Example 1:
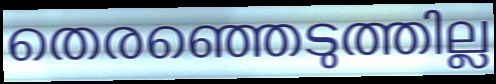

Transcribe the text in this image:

തെരഞ്ഞെടുത്തില്ല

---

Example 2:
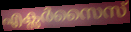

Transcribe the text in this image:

എക്സർസൈസ്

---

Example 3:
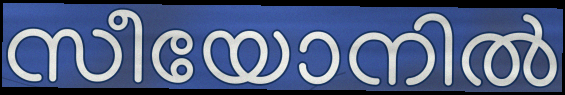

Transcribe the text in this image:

സീയോനിൽ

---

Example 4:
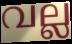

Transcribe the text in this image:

വല്ല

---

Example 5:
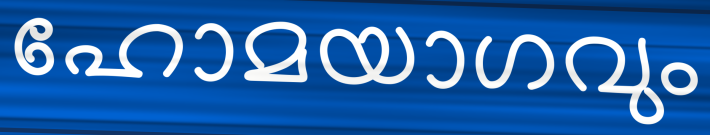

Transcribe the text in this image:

ഹോമയാഗവും